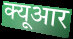
क्यूआर